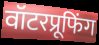
वॉटरप्रूफिंग